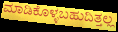
ಮಾಡಿಕೊಳ್ಳಬಹುದಿತ್ತಲ್ಲ